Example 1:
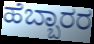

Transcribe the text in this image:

ಹೆಬ್ಬಾರರ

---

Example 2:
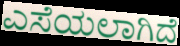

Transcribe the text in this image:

ಎಸೆಯಲಾಗಿದೆ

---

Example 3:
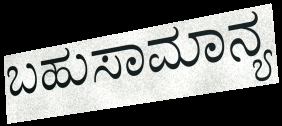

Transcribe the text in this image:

ಬಹುಸಾಮಾನ್ಯ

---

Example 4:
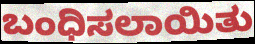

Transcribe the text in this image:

ಬಂಧಿಸಲಾಯಿತು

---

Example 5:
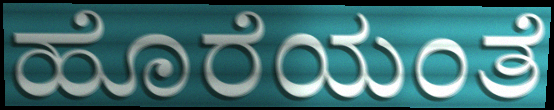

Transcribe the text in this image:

ಹೊರೆಯಂತೆ